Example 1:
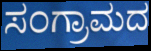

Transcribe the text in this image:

ಸಂಗ್ರಾಮದ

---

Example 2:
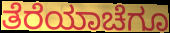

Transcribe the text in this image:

ತೆರೆಯಾಚೆಗೂ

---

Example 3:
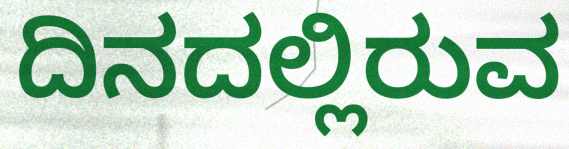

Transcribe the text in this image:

ದಿನದಲ್ಲಿರುವ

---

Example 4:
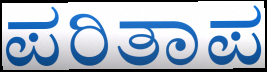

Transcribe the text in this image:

ಪರಿತಾಪ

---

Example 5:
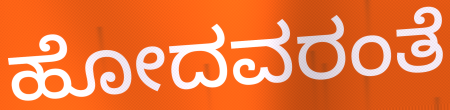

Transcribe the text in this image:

ಹೋದವರಂತೆ